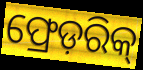
ଫ୍ରେଡ଼ରିକ୍